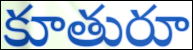
కూతురూ